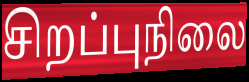
சிறப்புநிலை